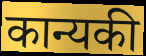
कान्यकी